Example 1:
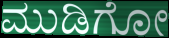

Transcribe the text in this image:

ಮುಡಿಗೋ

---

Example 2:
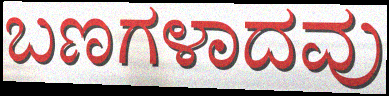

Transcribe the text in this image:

ಬಣಗಳಾದವು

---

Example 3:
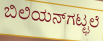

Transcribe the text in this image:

ಬಿಲಿಯನ್‌ಗಟ್ಟಲೆ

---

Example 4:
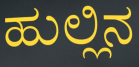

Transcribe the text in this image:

ಹುಲ್ಲಿನ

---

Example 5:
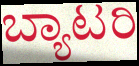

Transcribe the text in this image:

ಬ್ಯಾಟರಿ